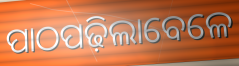
ପାଠପଢ଼ିଲାବେଳେ